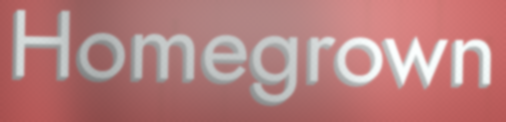
Homegrown